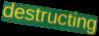
destructing